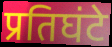
प्रतिघंटे